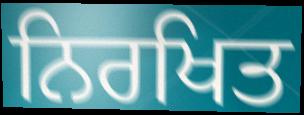
ਨਿਰਖਿਤ